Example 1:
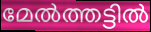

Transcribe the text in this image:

മേൽത്തട്ടിൽ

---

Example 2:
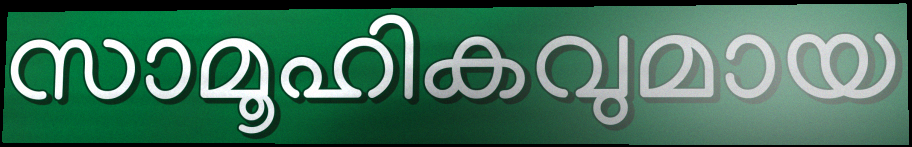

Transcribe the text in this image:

സാമൂഹികവുമായ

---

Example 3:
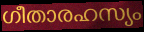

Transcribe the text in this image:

ഗീതാരഹസ്യം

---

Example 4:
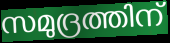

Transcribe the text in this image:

സമുദ്രത്തിന്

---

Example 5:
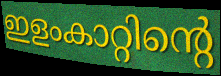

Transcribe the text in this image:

ഇളംകാറ്റിന്റെ